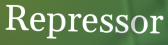
Repressor